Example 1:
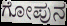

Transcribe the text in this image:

ಗೋಪುನ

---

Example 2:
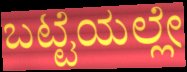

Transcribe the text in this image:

ಬಟ್ಟೆಯಲ್ಲೇ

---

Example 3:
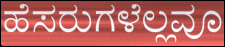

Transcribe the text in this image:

ಹೆಸರುಗಳೆಲ್ಲವೂ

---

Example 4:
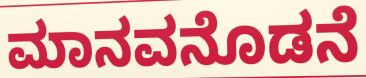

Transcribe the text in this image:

ಮಾನವನೊಡನೆ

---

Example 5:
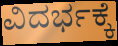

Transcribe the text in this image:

ವಿದರ್ಭಕ್ಕೆ